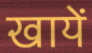
खायें